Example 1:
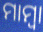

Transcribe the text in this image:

ମାମ୍ଵା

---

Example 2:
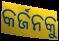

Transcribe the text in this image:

କର୍ଜନକୁ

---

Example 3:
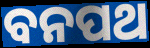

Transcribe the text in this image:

ବନପଥ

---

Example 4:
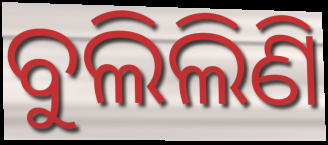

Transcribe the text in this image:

ବୁଲିଲିଣି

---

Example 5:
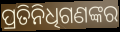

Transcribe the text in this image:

ପ୍ରତିନିଧିଗଣଙ୍କର